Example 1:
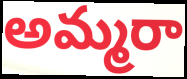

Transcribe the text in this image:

అమ్మరా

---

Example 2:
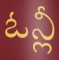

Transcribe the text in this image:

ఓన్లీ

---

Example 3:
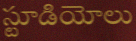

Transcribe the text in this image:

స్టూడియోలు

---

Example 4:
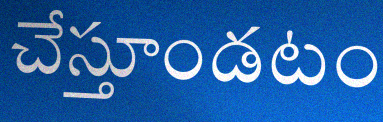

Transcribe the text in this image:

చేస్తూండటం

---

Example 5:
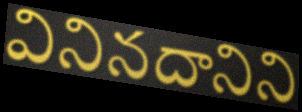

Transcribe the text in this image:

వినినదానిని